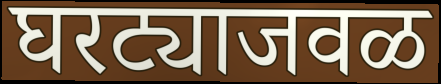
घरट्याजवळ